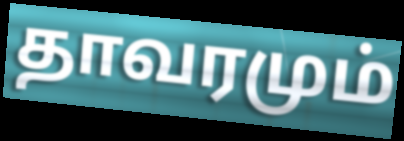
தாவரமும்